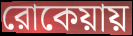
রোকেয়ায়